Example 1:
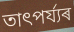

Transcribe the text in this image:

তাৎপৰ্য্যৰ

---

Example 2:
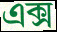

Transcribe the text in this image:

এক্স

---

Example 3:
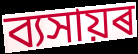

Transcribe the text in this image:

ব্যসায়ৰ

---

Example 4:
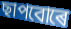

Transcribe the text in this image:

ছাপবোৰে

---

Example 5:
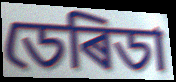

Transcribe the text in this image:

ডেৰিডা